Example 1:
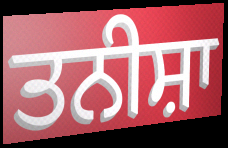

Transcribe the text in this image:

ਤਨੀਸ਼ਾ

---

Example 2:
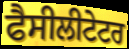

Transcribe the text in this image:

ਫੈਸੀਲੀਟੇਟਰ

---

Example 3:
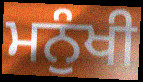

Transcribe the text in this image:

ਮਨੁੰਖੀ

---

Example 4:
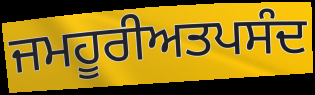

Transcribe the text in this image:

ਜਮਹੂਰੀਅਤਪਸੰਦ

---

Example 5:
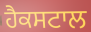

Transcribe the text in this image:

ਹੈਕਸਟਾਲ